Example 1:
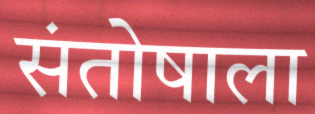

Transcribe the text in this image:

संतोषाला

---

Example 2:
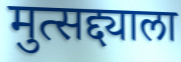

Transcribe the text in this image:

मुत्सद्द्याला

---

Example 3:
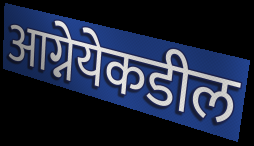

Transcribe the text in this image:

आग्नेयेकडील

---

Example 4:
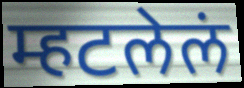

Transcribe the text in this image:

म्हटलेलं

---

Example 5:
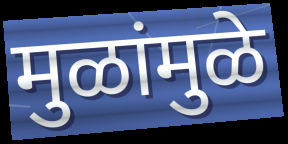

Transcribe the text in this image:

मुळांमुळे